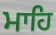
ਮਾਹਿ